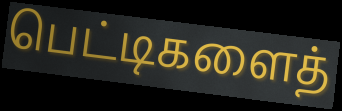
பெட்டிகளைத்